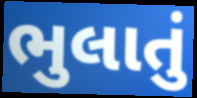
ભુલાતું